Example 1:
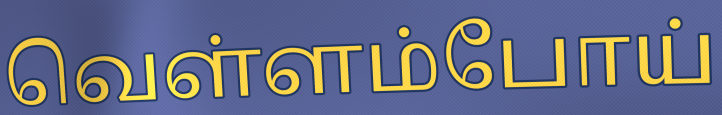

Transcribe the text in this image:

வெள்ளம்போய்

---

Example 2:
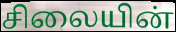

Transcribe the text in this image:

சிலையின்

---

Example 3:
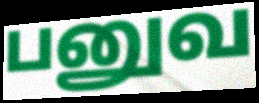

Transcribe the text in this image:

பனுவ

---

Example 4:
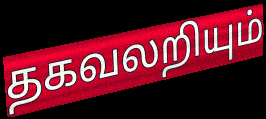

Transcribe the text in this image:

தகவலறியும்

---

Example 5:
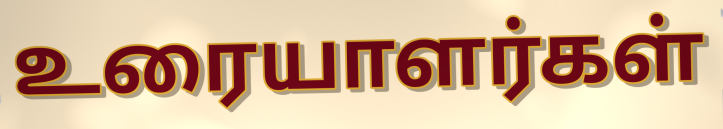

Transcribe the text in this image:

உரையாளர்கள்